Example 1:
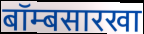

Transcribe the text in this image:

बॉम्बसारखा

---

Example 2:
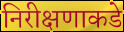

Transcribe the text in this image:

निरीक्षणाकडे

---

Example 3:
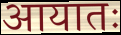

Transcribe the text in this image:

आयातः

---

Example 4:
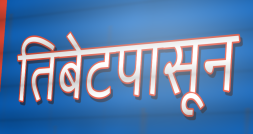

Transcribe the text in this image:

तिबेटपासून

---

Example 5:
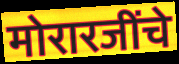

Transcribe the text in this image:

मोरारजींचे